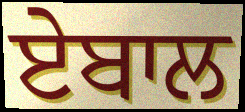
ਏਬਾਲ